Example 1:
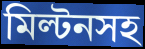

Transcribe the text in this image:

মিল্টনসহ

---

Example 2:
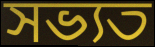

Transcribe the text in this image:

সভ্যত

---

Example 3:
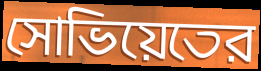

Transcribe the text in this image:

সোভিয়েতের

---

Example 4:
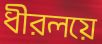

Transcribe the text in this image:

ধীরলয়ে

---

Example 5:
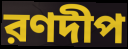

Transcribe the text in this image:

রণদীপ